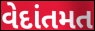
વેદાંતમત